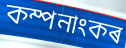
কম্পনাংকৰ